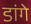
डांगे